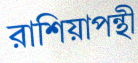
রাশিয়াপন্থী